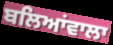
ਬਲਿਆਂਵਾਲਾ